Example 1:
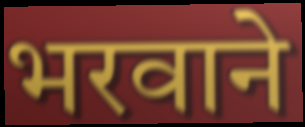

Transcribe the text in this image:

भरवाने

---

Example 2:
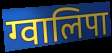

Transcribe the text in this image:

ग्वालिपा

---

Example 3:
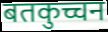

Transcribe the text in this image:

बतकुच्चन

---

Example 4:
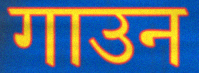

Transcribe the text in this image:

गाउन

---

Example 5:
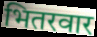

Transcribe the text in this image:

भितरवार